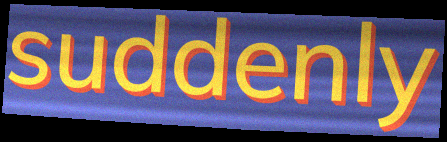
suddenly